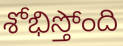
శోభిస్తోంది